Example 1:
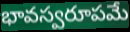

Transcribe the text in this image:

భావస్వరూపమే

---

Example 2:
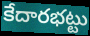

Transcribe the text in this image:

కేదారభట్టు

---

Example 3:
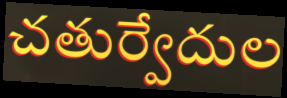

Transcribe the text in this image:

చతుర్వేదుల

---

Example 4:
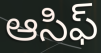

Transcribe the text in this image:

ఆసిఫ్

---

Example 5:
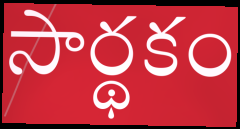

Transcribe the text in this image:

సార్థకం